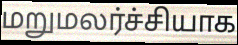
மறுமலர்ச்சியாக